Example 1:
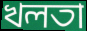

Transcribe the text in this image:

খলতা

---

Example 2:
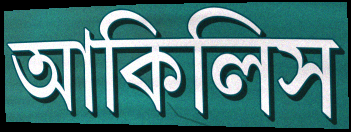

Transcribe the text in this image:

আকিলিস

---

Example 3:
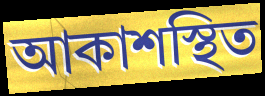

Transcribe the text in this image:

আকাশস্থিত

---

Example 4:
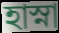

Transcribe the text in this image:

হাস্না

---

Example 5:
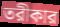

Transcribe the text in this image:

তরীকার